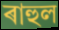
ৰাহুল